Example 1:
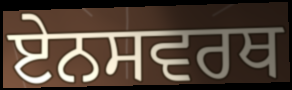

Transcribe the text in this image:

ਏਨਸਵਰਥ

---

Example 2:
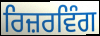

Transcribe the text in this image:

ਰਿਜ਼ਰਵਿੰਗ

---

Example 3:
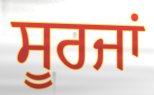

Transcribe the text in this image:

ਸੂਰਜਾਂ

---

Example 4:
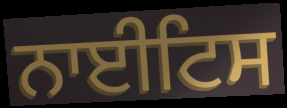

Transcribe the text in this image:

ਨਾਈਟਿਸ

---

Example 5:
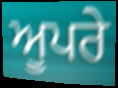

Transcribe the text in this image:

ਅੂਪਰੇ